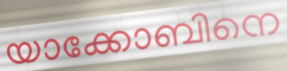
യാക്കോബിനെ